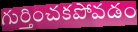
గుర్తించకపోవడం